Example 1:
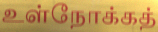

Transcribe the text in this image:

உள்நோக்கத்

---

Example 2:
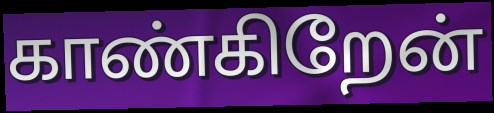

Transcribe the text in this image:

காண்கிறேன்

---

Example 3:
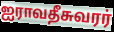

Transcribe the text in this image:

ஐராவதீசுவரர்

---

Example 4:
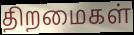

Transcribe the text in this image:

திறமைகள்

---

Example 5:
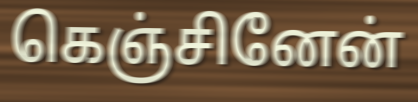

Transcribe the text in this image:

கெஞ்சினேன்